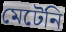
মেটেনি